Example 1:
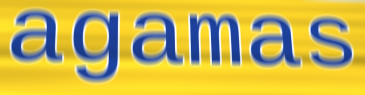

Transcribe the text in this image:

agamas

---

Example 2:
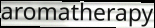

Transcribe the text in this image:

aromatherapy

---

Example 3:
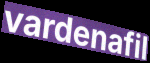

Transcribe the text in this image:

vardenafil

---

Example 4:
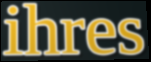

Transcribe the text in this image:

ihres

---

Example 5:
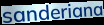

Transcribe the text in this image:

sanderiana